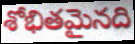
శోభితమైనది